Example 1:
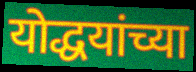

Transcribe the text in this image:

योद्धयांच्या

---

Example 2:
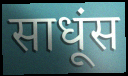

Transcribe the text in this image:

साधूंस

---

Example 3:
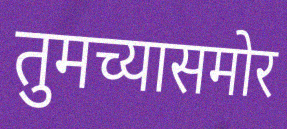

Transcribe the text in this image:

तुमच्यासमोर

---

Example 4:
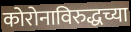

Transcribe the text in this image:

कोरोनाविरुद्धच्या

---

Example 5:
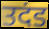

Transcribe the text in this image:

उदंड